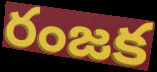
రంజక